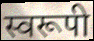
स्वरूपी